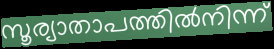
സൂര്യാതാപത്തിൽനിന്ന്